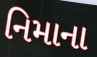
નિમાના